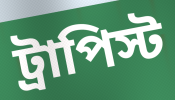
ট্রাপিস্ট